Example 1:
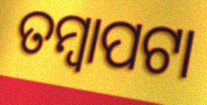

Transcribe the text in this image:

ତମ୍ବାପଟା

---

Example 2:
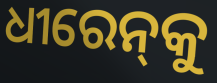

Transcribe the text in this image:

ଧୀରେନ୍‌କୁ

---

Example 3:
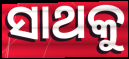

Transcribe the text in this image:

ସାଥକୁ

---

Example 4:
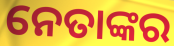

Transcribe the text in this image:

ନେତାଙ୍କର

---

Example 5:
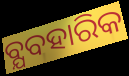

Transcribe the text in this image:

ବ୍ଯବହାରିକ